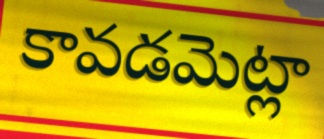
కావడమెట్లా